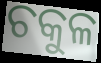
ଚକୁଳ